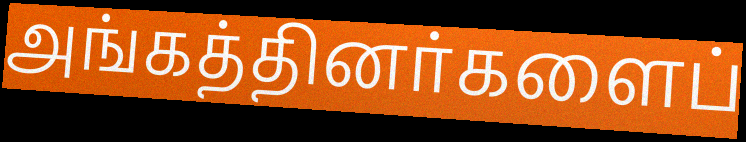
அங்கத்தினர்களைப்